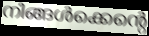
നിങ്ങൾക്കെന്റെ